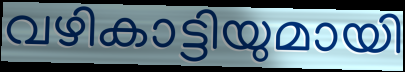
വഴികാട്ടിയുമായി